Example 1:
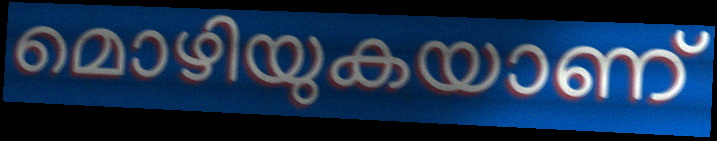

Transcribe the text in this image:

മൊഴിയുകയാണ്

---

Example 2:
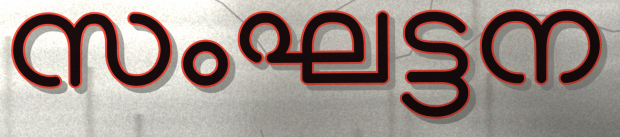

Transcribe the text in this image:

സംഘട്ടന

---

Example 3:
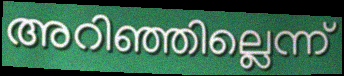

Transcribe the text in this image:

അറിഞ്ഞില്ലെന്ന്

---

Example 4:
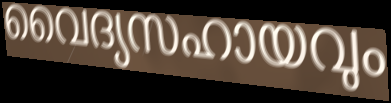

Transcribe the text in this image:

വൈദ്യസഹായവും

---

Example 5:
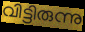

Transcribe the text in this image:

വിട്ടിരുന്നു